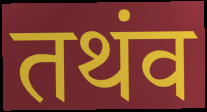
तथंव